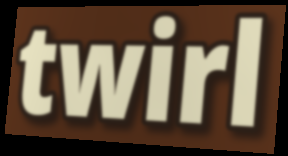
twirl